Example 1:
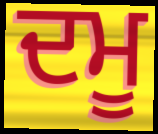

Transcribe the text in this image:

ਦਮੂ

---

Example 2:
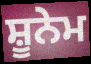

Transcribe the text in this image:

ਸ਼ੂਨੇਮ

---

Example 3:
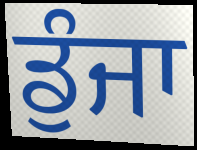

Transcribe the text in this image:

ਡੁੰਜਾ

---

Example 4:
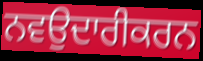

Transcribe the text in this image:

ਨਵਉਦਾਰੀਕਰਨ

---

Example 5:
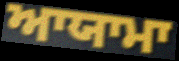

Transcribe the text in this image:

ਆਯਾਮਾ